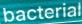
bacterial